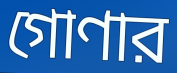
গোণার